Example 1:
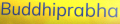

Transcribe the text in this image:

Buddhiprabha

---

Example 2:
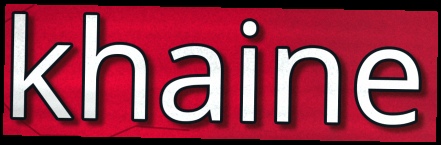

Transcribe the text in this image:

khaine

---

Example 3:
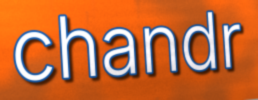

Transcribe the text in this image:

chandr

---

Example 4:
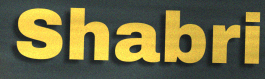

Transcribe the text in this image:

Shabri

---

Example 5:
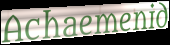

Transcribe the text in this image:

Achaemenid